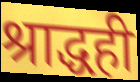
श्राद्धही